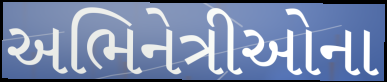
અભિનેત્રીઓના